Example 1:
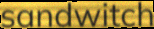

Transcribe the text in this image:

sandwitch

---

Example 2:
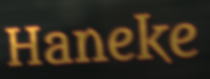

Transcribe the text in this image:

Haneke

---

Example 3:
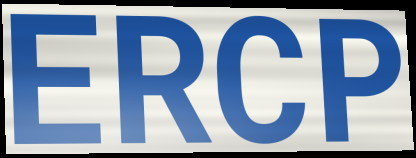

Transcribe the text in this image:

ERCP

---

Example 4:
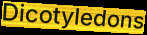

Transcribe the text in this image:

Dicotyledons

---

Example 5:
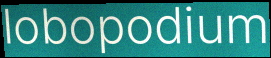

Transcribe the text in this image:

lobopodium